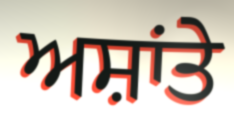
ਅਸ਼ਾਂਤੇ